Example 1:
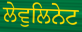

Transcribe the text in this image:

ਲੇਵੁਲਿਨੇਟ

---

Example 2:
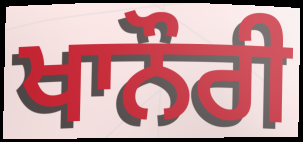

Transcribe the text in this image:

ਖਾਨੌਰੀ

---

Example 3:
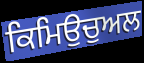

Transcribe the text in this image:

ਕਿਮਿਉਚੁਅਲ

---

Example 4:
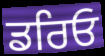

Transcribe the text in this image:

ਡਰਿਓ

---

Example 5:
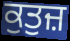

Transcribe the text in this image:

ਕੁਤੁਜ਼